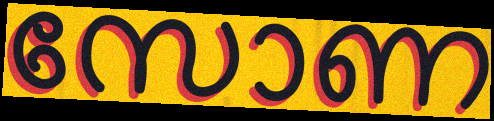
സോണ